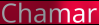
Chamar